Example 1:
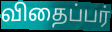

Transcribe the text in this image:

விதைப்பர்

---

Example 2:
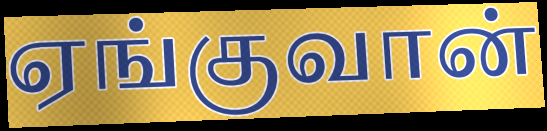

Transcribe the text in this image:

ஏங்குவான்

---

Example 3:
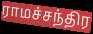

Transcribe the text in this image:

ராமச்சந்திர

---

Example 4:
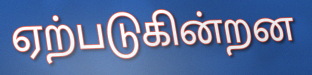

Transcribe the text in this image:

ஏற்படுகின்றன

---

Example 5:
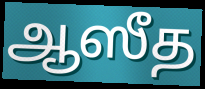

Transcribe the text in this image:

ஆஸீத